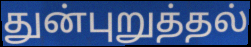
துன்புறுத்தல்